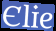
Elie